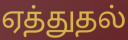
ஏத்துதல்